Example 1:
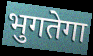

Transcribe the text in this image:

भुगतेगा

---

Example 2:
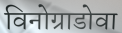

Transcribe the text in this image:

विनोग्राडोवा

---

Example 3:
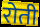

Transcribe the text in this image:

रोती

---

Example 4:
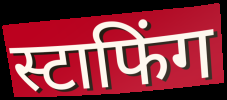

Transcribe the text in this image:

स्टाफिंग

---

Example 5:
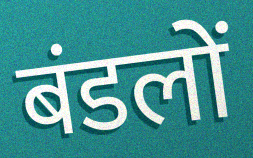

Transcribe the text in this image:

बंडलों